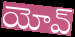
యోవ్